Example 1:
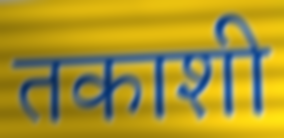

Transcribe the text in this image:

तकाशी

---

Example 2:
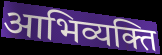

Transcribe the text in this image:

आभिव्यक्ति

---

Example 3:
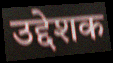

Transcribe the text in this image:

उद्देशक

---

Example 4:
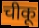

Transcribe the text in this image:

चीकू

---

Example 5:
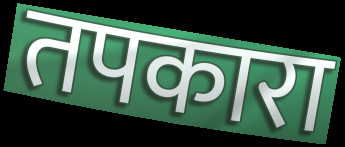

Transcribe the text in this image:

तपकारा